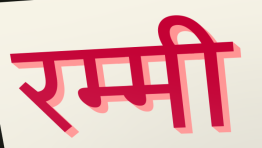
रम्मी